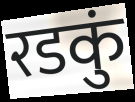
रडकुं